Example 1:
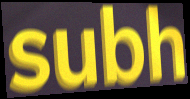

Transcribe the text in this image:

subh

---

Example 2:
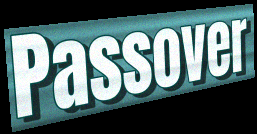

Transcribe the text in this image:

Passover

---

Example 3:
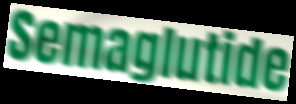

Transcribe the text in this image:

Semaglutide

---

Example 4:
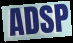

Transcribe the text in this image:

ADSP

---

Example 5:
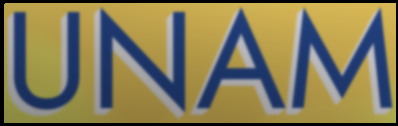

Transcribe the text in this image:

UNAM